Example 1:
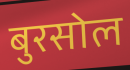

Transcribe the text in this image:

बुरसोल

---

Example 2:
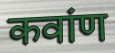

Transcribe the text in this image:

कवांण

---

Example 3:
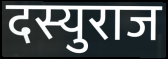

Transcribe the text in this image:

दस्युराज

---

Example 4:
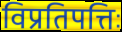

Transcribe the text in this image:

विप्रतिपत्तिः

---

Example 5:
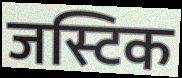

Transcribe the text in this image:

जस्टिक